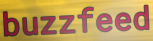
buzzfeed